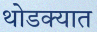
थोडक्‍यात